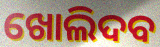
ଖୋଲିଦବ